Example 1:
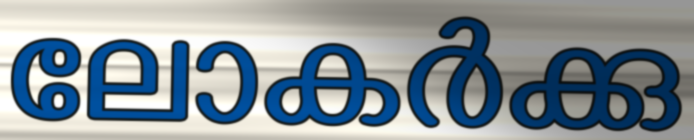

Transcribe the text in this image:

ലോകർക്കു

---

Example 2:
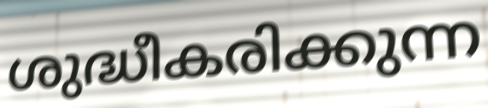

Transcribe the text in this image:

ശുദ്ധീകരിക്കുന്ന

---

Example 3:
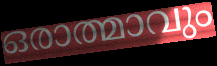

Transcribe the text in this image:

ഒരാത്മാവും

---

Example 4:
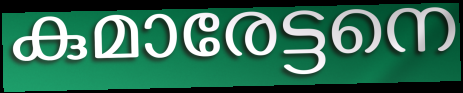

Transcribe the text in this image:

കുമാരേട്ടനെ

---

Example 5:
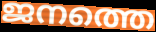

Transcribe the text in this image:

ജനത്തെ